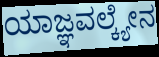
ಯಾಜ್ಞವಲ್ಕ್ಯೇನ